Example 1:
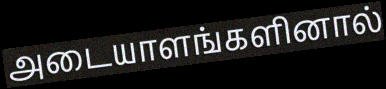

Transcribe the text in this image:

அடையாளங்களினால்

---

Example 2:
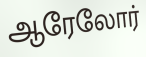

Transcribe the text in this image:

ஆரேலோர்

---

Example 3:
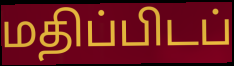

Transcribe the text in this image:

மதிப்பிடப்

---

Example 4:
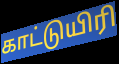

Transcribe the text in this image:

காட்டுயிரி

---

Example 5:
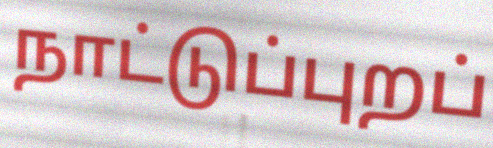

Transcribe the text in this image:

நாட்டுப்புறப்